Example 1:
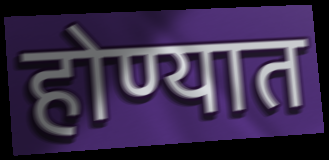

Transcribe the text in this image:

होण्यात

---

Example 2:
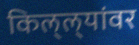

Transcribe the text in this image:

किल्ल्यांवर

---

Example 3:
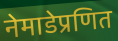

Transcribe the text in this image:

नेमाडेप्रणित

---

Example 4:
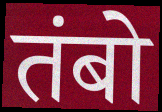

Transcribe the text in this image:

तंबो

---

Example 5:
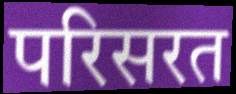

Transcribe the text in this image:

परिसरत